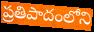
ప్రతిపాదంలోని